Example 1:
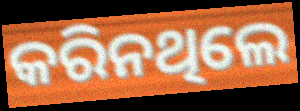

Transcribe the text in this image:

କରିନଥିଲେ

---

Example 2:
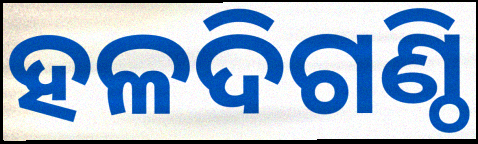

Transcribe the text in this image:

ହଳଦିଗଣ୍ଠି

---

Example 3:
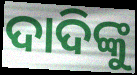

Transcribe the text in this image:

ଦାଦିଙ୍କୁ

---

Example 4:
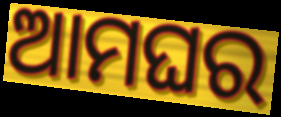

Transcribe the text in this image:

ଆମଘର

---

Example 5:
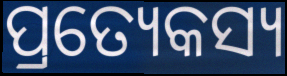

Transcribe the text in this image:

ପ୍ରତ୍ୟେକସ୍ୟ